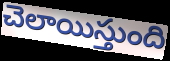
చెలాయిస్తుంది